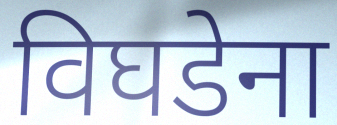
विघडेना